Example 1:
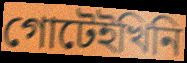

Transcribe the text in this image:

গোটেইখিনি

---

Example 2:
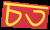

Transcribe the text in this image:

চত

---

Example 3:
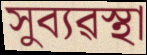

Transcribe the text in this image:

সুব্যৱস্থা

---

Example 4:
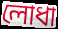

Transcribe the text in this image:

লোধা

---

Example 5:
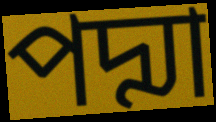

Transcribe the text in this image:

পদ্মা